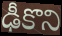
ఢీకొని